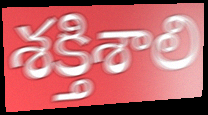
శక్తిశాలి